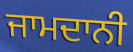
ਜਾਮਦਾਨੀ